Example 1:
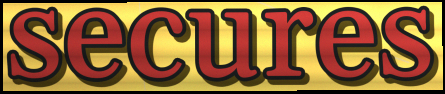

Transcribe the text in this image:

secures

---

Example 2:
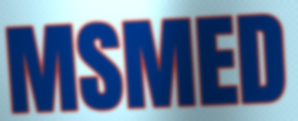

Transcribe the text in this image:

MSMED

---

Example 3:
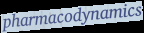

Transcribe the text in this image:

pharmacodynamics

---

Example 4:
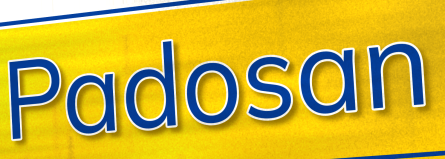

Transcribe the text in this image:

Padosan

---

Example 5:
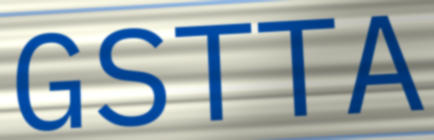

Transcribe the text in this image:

GSTTA